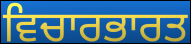
ਵਿਚਾਰਭਾਰਤ